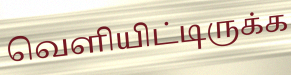
வெளியிட்டிருக்க